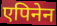
एपिनेन